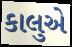
કાલુએ